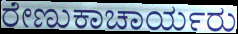
ರೇಣುಕಾಚಾರ್ಯರು